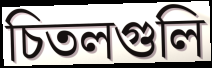
চিতলগুলি